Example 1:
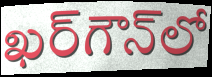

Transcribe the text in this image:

ఖర్‌గౌన్‌లో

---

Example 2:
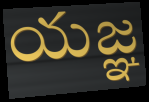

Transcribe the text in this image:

యజ్ఞ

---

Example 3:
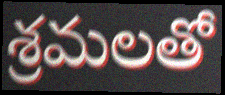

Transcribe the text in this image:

శ్రమలతో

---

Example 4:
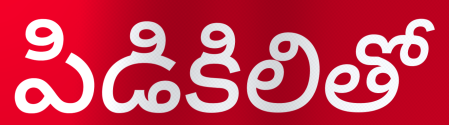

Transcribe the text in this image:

పిడికిలితో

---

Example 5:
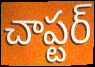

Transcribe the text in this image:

చాప్టర్